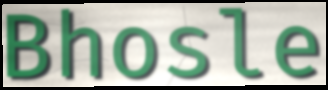
Bhosle